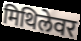
मिथिलेवर